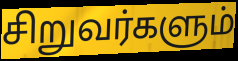
சிறுவர்களும்